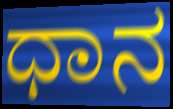
ಧಾನ